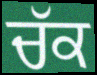
ਚੱਕ